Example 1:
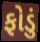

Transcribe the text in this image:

ફોડું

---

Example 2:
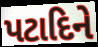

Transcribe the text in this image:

પટાદિને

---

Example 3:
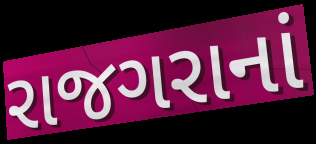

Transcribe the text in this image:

રાજગરાનાં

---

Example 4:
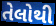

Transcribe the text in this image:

તેલોથી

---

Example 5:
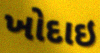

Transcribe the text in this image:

ખોદાઇ